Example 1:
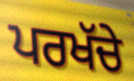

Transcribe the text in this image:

ਪਰਖੱਚੇ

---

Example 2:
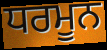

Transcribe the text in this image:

ਧਰਮੂਨ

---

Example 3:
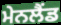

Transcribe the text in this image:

ਮੇਨਲੈਂਡ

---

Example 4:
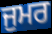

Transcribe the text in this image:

ਜੁਮਰ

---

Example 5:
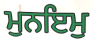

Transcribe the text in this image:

ਮੁਨਇਮੁ